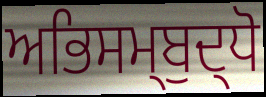
ਅਭਿਸਮ੍ਬੁਦ੍ਧੋ